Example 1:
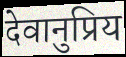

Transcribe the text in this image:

देवानुप्रिय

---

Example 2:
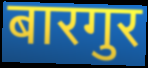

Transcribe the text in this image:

बारगुर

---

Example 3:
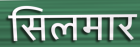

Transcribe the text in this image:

सिलमार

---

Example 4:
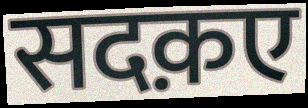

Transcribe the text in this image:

सदक़ए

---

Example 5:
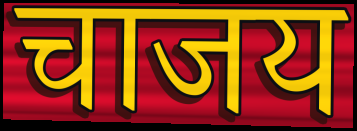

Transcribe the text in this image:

चाजय